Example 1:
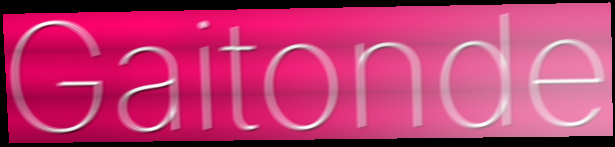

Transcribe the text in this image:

Gaitonde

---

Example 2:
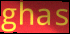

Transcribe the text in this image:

ghas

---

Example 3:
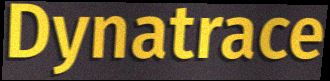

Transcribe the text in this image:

Dynatrace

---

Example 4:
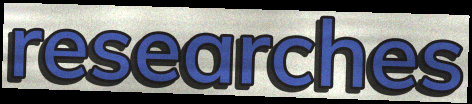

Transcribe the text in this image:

researches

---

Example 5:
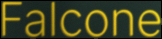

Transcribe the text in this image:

Falcone